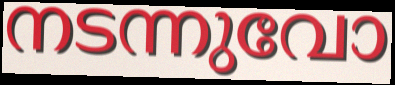
നടന്നുവോ